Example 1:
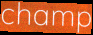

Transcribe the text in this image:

champ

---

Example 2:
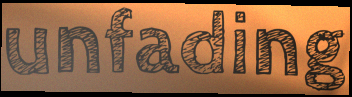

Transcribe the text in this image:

unfading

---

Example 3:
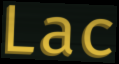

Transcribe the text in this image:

Lac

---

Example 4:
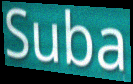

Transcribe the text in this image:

Suba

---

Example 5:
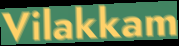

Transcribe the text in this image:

Vilakkam